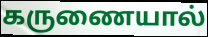
கருணையால்